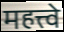
महत्त्वे